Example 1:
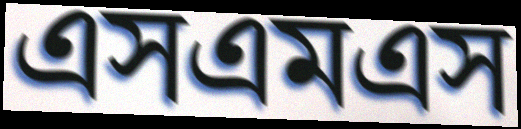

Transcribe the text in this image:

এসএমএস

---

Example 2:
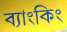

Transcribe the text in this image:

ব্যাংকিং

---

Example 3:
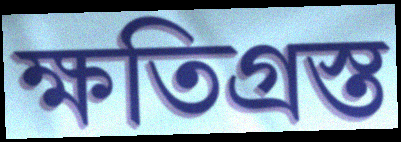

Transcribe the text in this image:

ক্ষতিগ্রস্ত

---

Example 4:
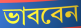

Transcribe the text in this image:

ভাববেন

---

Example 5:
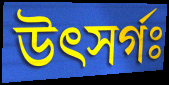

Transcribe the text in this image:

উৎসর্গঃ